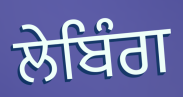
ਲੇਬਿੰਗ